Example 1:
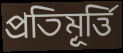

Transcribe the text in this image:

প্ৰতিমূৰ্ত্তি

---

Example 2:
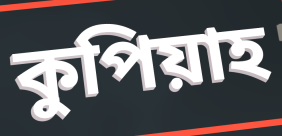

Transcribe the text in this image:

কুপিয়াহ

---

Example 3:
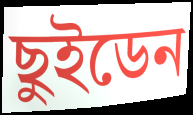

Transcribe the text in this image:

ছুইডেন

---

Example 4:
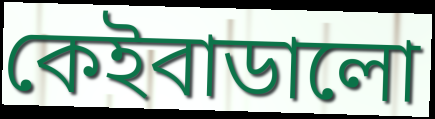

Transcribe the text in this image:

কেইবাডালো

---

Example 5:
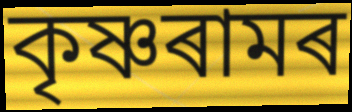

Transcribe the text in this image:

কৃষ্ণৰামৰ